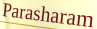
Parasharam